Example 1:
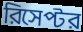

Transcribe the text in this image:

রিসেপ্টর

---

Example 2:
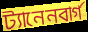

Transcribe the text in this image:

ট্যানেনবার্গ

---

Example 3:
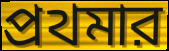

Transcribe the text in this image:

প্রথমার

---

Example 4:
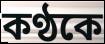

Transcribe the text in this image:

কণ্ঠকে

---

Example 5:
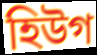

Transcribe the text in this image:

হিউগ